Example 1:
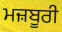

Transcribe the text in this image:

ਮਜ਼ਬੂਰੀ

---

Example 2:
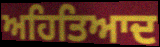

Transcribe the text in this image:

ਅਹਿਤਿਆਦ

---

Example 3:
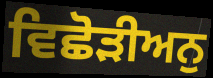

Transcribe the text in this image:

ਵਿਛੋੜੀਅਨੁ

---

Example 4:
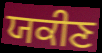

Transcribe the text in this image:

ਯਕੀਣ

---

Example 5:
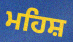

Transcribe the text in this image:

ਮਹਿਸ਼